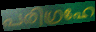
പരിഗ്രഹേ